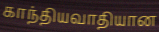
காந்தியவாதியான